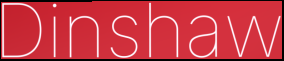
Dinshaw